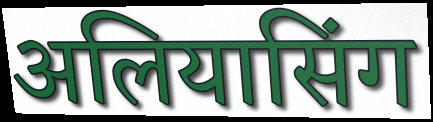
अलियासिंग